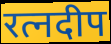
रत्नदीप